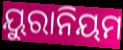
ୟୁରାନିୟମ